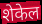
शेकेल